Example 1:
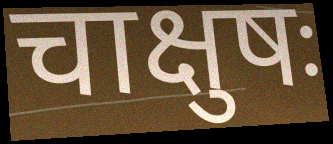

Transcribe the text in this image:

चाक्षुषः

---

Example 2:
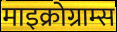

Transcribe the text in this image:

माइक्रोग्राम्स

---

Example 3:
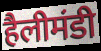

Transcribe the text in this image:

हैलीमंडी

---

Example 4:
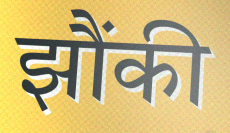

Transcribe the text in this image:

झौंकी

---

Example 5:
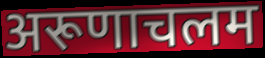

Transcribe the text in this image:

अरूणाचलम